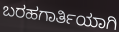
ಬರಹಗಾರ್ತಿಯಾಗಿ